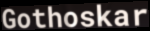
Gothoskar